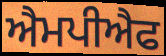
ਐਮਪੀਐਫ